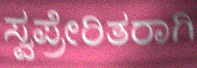
ಸ್ವಪ್ರೇರಿತರಾಗಿ